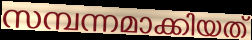
സമ്പന്നമാക്കിയത്